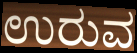
ಉರುವ